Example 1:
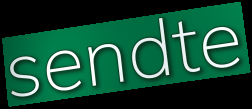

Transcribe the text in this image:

sendte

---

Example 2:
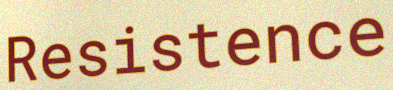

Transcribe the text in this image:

Resistence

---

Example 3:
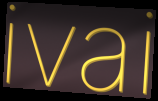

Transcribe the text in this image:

ivai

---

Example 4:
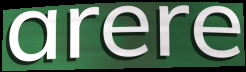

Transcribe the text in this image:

arere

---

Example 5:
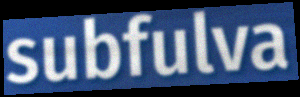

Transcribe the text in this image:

subfulva